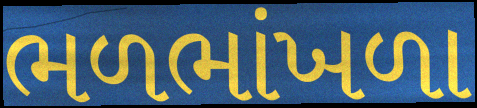
ભળભાંખળા